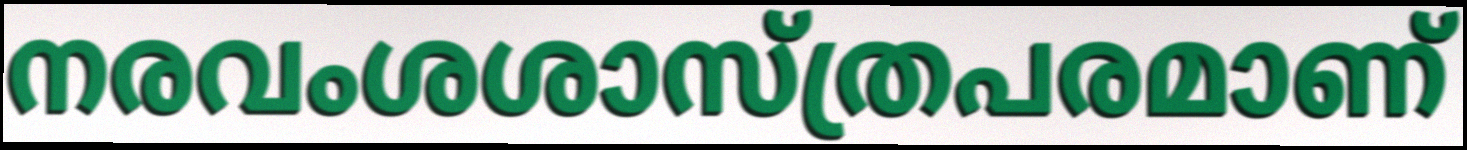
നരവംശശാസ്ത്രപരമാണ്